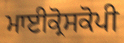
ਮਾਈਕ੍ਰੋਸਕੋਪੀ